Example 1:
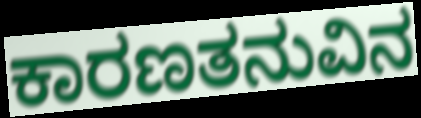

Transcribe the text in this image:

ಕಾರಣತನುವಿನ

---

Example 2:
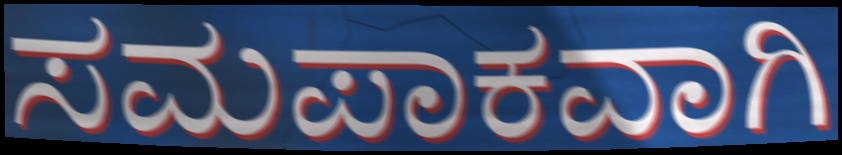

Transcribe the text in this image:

ಸಮಪಾಕವಾಗಿ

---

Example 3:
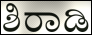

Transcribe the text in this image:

ಶಿರಾಡಿ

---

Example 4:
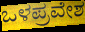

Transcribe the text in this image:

ಒಳಪ್ರವೇಶ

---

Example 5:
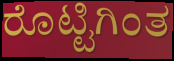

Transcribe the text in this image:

ರೊಟ್ಟಿಗಿಂತ